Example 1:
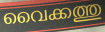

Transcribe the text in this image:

വൈക്കത്തു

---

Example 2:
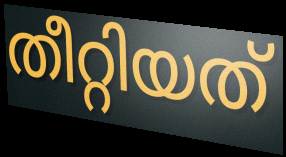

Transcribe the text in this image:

തീറ്റിയത്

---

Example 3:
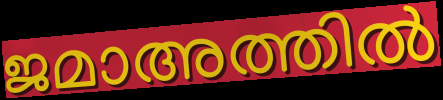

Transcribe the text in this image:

ജമാഅത്തിൽ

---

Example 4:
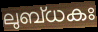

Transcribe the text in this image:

ലുബ്ധകഃ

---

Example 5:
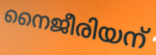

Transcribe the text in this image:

നൈജീരിയന്